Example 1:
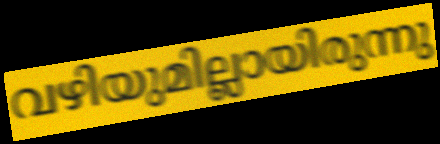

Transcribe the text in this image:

വഴിയുമില്ലായിരുന്നു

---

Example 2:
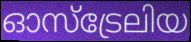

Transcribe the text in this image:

ഓസ്ട്രേലിയ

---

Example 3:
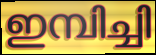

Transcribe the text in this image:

ഇമ്പിച്ചി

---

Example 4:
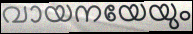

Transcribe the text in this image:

വായനയേയും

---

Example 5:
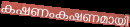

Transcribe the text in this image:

കഷണംകഷണമായി